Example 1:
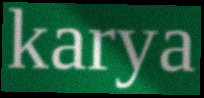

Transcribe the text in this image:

karya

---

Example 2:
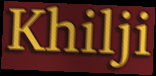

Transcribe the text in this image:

Khilji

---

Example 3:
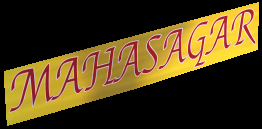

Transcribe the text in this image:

MAHASAGAR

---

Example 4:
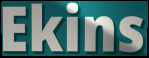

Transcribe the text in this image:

Ekins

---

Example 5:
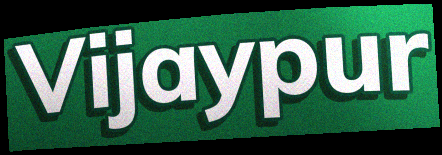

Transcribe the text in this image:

Vijaypur